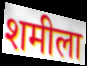
शमीला